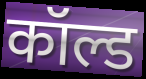
कॉल्ड